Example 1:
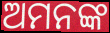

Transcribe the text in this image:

ଅମନଙ୍କ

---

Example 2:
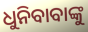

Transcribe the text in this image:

ଧୁନିବାବାଙ୍କୁ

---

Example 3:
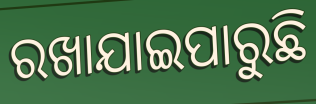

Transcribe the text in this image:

ରଖାଯାଇପାରୁଛି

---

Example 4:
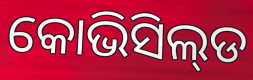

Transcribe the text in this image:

କୋଭିସିଲ୍‌ଡ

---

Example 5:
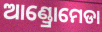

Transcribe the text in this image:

ଆଣ୍ଡ୍ରୋମେଡା